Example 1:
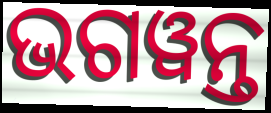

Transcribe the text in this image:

ଭଗୱନ୍ତ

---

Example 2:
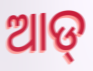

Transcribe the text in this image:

ଆଡ୍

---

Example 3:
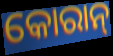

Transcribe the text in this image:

କୋରାନ୍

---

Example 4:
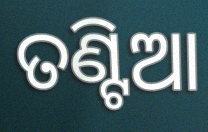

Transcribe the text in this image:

ତଣ୍ଟିଆ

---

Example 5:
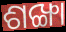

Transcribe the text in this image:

ଶଙ୍ଖା